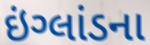
ઇંગ્લાંડના